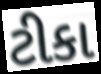
ટીકા